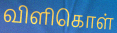
விளிகொள்